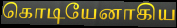
கொடியேனாகிய